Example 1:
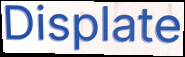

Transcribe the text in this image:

Displate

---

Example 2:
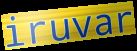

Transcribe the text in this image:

iruvar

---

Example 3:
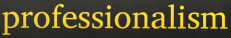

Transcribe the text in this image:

professionalism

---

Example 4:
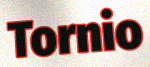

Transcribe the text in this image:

Tornio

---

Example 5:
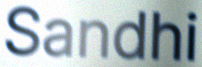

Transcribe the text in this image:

Sandhi